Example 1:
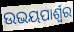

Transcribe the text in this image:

ଉଭୟପାର୍ଶ୍ୱର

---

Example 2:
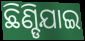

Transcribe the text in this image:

ଛିଣ୍ଡିଯାଇ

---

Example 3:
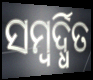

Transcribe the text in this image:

ସମ୍ବର୍ଦ୍ଧିତ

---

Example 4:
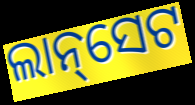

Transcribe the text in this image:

ଲାନ୍‌ସେଟ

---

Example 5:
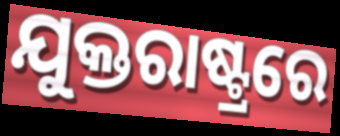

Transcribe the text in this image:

ଯୁକ୍ତରାଷ୍ଟ୍ରରେ